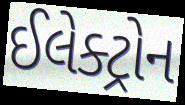
ઈલેક્ટ્રોન